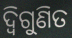
ଦ୍ୱିଗୁଣିତ